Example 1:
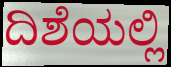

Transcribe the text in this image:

ದಿಶೆಯಲ್ಲಿ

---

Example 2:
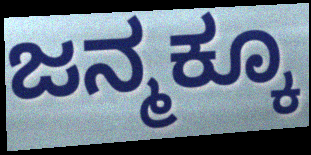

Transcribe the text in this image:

ಜನ್ಮಕ್ಕೂ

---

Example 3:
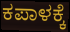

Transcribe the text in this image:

ಕಪಾಳಕ್ಕೆ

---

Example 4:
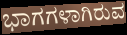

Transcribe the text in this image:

ಭಾಗಗಳಾಗಿರುವ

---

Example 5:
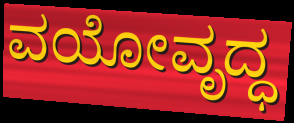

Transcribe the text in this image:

ವಯೋವೃದ್ಧ